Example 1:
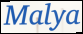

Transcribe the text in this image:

Malya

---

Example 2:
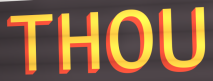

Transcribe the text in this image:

THOU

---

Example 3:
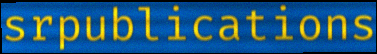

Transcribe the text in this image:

srpublications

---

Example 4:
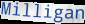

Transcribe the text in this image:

Milligan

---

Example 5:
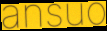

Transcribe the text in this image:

ansuo